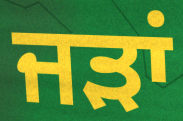
ਜੜਾਂ